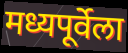
मध्यपूर्वेला